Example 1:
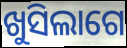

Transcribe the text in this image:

ଖୁସିଲାଗେ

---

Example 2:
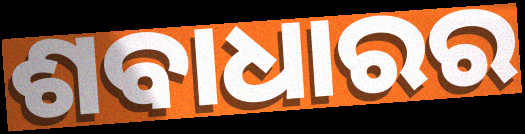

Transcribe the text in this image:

ଶବାଧାରର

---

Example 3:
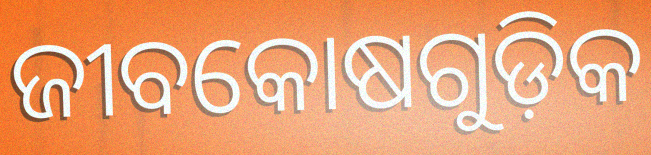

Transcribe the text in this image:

ଜୀବକୋଷଗୁଡ଼ିକ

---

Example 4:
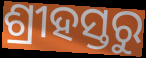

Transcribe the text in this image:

ଶ୍ରୀହସ୍ତରୁ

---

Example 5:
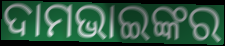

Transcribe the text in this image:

ଦାମଭାଇଙ୍କର